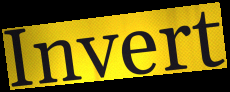
Invert